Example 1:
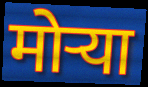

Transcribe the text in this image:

मोऱ्या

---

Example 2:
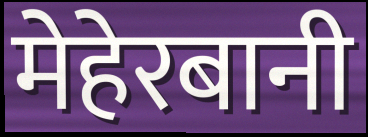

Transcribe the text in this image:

मेहेरबानी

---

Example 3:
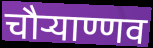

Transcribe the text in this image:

चौऱ्याण्णव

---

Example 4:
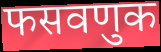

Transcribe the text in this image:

फसवणुक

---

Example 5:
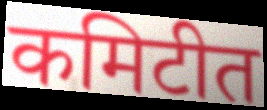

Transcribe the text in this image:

कमिटीत